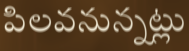
పిలవనున్నట్లు